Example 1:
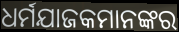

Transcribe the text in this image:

ଧର୍ମଯାଜକମାନଙ୍କର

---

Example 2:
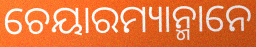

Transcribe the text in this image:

ଚେୟାରମ୍ୟାନ୍ମାନେ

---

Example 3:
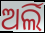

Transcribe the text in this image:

ଅର୍ଲି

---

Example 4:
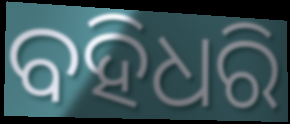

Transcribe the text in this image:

ବହିଧରି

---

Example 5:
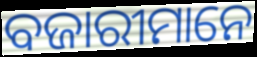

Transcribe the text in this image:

ବଜାରୀମାନେ